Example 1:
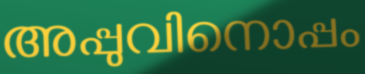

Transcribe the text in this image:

അപ്പുവിനൊപ്പം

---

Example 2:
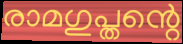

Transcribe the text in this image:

രാമഗുപ്തന്റെ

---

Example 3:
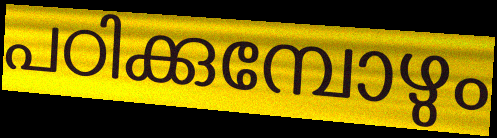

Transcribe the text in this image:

പഠിക്കുമ്പോഴും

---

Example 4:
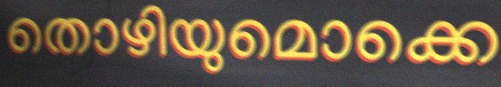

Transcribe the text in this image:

തൊഴിയുമൊക്കെ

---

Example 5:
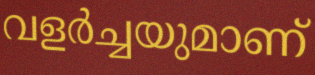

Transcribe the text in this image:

വളർച്ചയുമാണ്